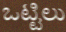
ಒಟ್ಟಿಲು